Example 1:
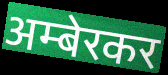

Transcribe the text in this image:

अम्बेरकर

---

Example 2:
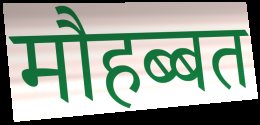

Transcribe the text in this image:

मौहब्बत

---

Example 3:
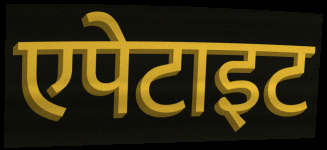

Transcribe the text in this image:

एपेटाइट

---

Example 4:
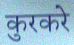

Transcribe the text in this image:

कुरकरे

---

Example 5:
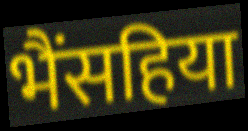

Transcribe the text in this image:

भैंसहिया